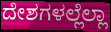
ದೇಶಗಳಲ್ಲೆಲ್ಲಾ